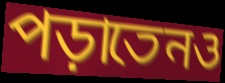
পড়াতেনও